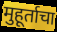
मुहूर्ताचा